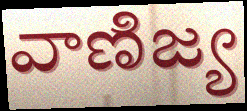
వాణిజ్య